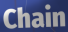
Chain